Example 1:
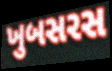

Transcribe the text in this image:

ખુબસરસ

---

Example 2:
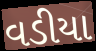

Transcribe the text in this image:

વડીયા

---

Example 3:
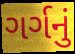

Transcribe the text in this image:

ગર્ગનું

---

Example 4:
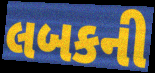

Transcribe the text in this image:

લબકની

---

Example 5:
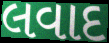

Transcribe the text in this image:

લવાદ